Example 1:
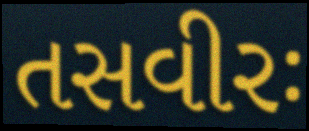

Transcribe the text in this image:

તસવીરઃ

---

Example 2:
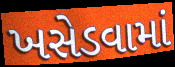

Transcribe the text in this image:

ખસેડવામાં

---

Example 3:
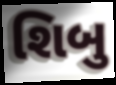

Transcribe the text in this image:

શિબુ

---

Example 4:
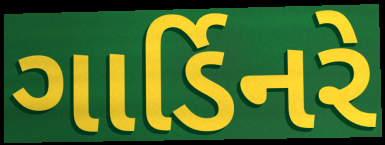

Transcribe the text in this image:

ગાર્ડિનરે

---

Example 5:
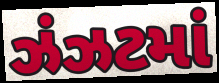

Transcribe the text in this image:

ઝંઝટમાં